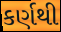
કર્ણથી